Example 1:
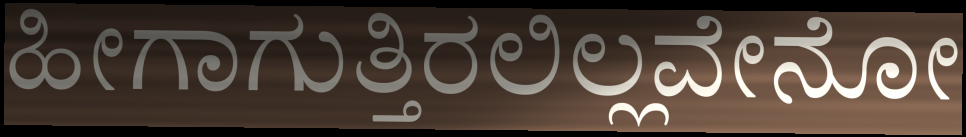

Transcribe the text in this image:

ಹೀಗಾಗುತ್ತಿರಲಿಲ್ಲವೇನೋ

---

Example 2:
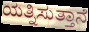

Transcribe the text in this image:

ಯತ್ನಿಸುತ್ತಾನೆ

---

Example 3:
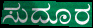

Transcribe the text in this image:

ಸುದೂರ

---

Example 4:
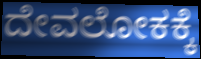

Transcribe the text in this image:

ದೇವಲೋಕಕ್ಕೆ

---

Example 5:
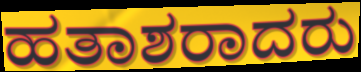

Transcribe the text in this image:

ಹತಾಶರಾದರು